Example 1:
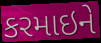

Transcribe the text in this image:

કરમાઇને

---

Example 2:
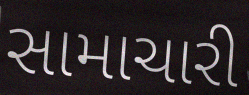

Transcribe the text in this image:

સામાચારી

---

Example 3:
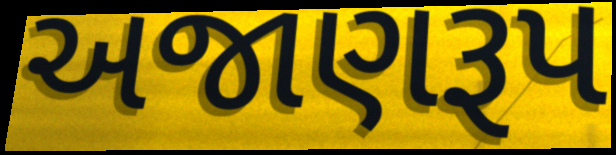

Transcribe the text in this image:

અજાણરૂપ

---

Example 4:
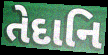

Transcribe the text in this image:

તેદાનિ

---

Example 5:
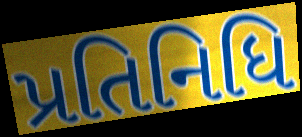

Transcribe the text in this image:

પ્રતિનિધિ